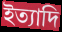
ইত্যাদি